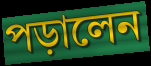
পড়ালেন